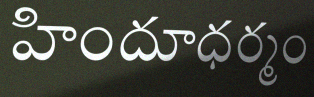
హిందూధర్మం